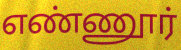
எண்ணூர்